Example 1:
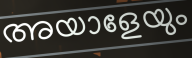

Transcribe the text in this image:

അയാളേയും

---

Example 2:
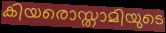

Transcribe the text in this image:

കിയരൊസ്താമിയുടെ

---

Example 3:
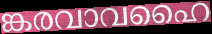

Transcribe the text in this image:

ങ്കരവാവഹൈ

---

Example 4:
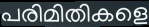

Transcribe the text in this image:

പരിമിതികളെ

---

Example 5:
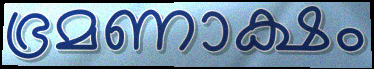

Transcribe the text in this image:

ഭ്രമണാക്ഷം